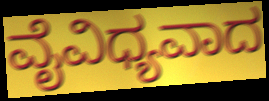
ವೈವಿಧ್ಯವಾದ